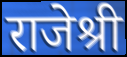
राजेश्री